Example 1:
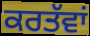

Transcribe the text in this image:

ਕਰਤੱਵਾਂ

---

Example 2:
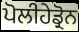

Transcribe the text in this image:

ਪੋਲੀਹੇਡ੍ਰੋਨ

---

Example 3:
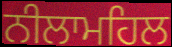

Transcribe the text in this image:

ਨੀਲਾਮਹਿਲ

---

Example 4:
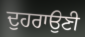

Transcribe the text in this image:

ਦੁਹਰਾਉਣੀ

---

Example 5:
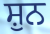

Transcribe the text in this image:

ਸ਼ੁਨ